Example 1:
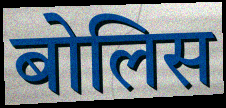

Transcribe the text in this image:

बोलिस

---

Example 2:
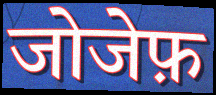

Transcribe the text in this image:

जोजेफ़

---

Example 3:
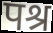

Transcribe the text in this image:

पश्र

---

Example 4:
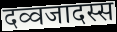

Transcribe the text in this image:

दव्वजादस्स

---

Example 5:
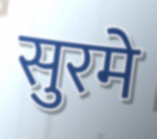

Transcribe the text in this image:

सुरमे